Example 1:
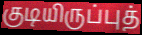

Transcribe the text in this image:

குடியிருப்புத்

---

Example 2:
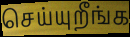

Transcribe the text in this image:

செய்யுறீங்க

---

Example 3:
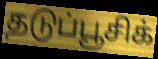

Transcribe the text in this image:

தடுப்பூசிக்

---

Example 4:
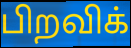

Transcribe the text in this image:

பிறவிக்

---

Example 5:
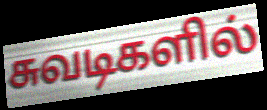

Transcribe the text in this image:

சுவடிகளில்